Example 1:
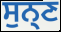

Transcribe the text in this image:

ਸੁਨ੍ਣ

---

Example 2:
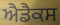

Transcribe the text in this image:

ਐਡੈਕਸ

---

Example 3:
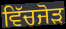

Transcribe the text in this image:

ਵਿੱਚਜੋੜ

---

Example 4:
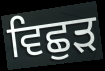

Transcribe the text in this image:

ਵਿਛੁੜ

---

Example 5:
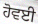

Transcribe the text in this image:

ਹੋਵਈ